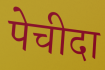
पेचीदा